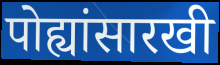
पोह्यांसारखी